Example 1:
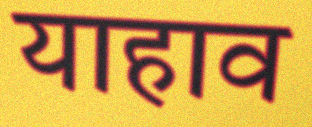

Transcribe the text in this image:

याहाव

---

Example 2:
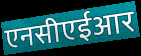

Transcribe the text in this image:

एनसीएईआर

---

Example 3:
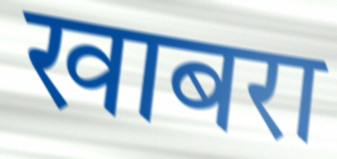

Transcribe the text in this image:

खाबरा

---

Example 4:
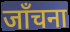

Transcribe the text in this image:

जाँचना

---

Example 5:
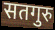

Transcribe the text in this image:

सतगुरु